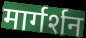
मार्गर्शन